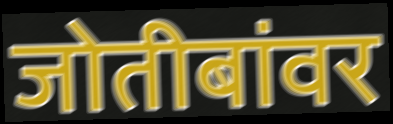
जोतीबांवर